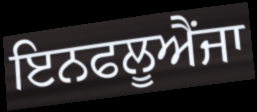
ਇਨਫਲੂਐਂਜਾ